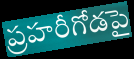
ప్రహరీగోడపై